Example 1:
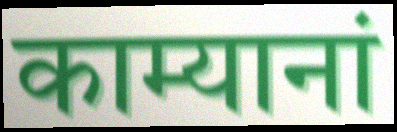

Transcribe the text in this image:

काम्यानां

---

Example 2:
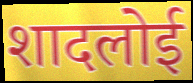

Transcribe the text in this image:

शादलोई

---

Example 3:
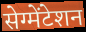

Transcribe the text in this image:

सेग्मेंटेशन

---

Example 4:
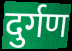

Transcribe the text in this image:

दुर्गण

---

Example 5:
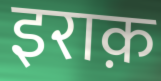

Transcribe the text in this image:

इराक़